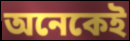
অনেকেই